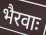
भैरवाः